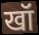
खॉ